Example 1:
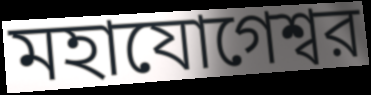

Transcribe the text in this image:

মহাযোগেশ্বর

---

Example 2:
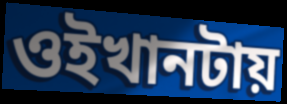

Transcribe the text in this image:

ওইখানটায়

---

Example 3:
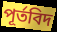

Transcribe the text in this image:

পূর্তবিদ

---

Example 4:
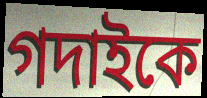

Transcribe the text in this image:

গদাইকে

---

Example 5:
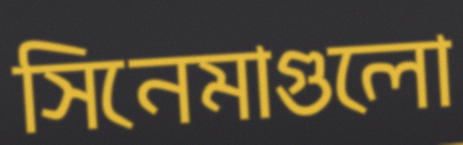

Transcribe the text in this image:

সিনেমাগুলো